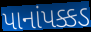
પાનાંપક્કડ